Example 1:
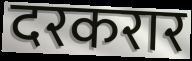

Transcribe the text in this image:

दरकरार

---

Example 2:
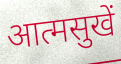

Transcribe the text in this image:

आत्मसुखें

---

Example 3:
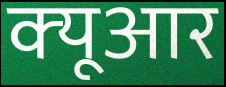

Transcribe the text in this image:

क्‍यूआर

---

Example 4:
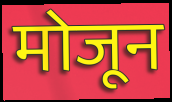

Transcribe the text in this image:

मोजून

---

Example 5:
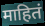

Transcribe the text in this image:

माहितं